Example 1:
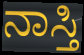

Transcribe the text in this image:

ನಾಸ್ತಿ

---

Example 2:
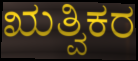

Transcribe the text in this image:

ಋತ್ವಿಕರ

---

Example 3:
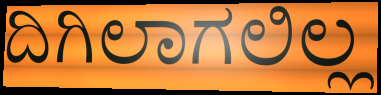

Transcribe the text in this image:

ದಿಗಿಲಾಗಲಿಲ್ಲ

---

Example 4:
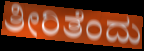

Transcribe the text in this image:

ತೀರಿತೆಂದು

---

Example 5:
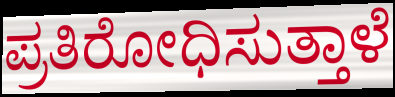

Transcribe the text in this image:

ಪ್ರತಿರೋಧಿಸುತ್ತಾಳೆ